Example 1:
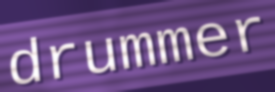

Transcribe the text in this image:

drummer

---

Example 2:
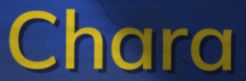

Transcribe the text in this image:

Chara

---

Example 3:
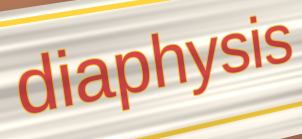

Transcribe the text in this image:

diaphysis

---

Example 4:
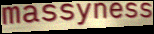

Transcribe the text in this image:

massyness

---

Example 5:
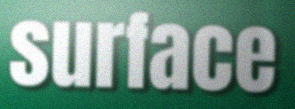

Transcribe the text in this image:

surface